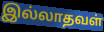
இல்லாதவள்